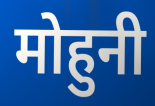
मोहुनी